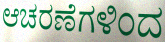
ಆಚರಣೆಗಳಿಂದ